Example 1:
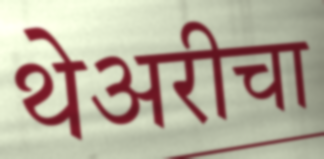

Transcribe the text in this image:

थेअरीचा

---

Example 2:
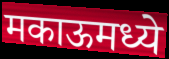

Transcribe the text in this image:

मकाऊमध्ये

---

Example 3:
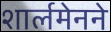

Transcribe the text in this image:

शार्लमेनने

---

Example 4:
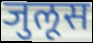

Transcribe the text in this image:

जुलूस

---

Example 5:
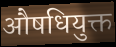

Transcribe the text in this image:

औषधियुक्त